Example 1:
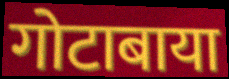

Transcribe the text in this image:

गोटाबाया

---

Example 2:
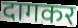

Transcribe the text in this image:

दागकर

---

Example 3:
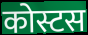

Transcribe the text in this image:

कोस्टस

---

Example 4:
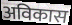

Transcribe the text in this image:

अविकास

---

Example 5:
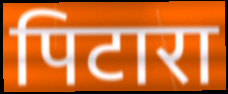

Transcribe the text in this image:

पिटारा